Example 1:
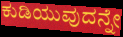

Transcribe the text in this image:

ಕುಡಿಯುವುದನ್ನೇ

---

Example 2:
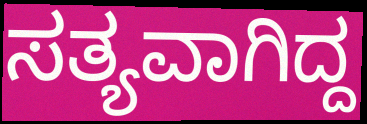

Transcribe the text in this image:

ಸತ್ಯವಾಗಿದ್ದ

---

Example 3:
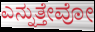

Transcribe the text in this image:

ಎನ್ನುತ್ತೇವೋ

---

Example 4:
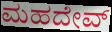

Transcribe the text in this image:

ಮಹದೇವ್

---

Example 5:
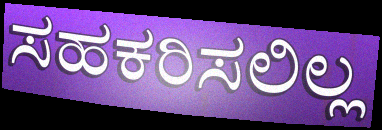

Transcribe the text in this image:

ಸಹಕರಿಸಲಿಲ್ಲ